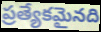
ప్రత్యేకమైనది